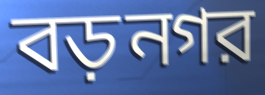
বড়নগর